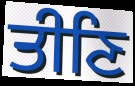
ਤੀਣਿ